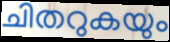
ചിതറുകയും